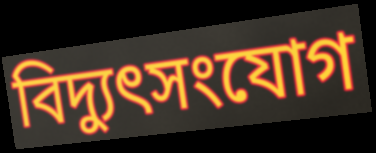
বিদ্যুৎসংযোগ